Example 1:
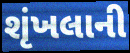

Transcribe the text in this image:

શૃંખલાની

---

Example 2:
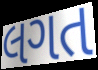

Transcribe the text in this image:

લગત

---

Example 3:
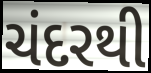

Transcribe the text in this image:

ચંદરથી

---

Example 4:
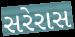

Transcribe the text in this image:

સરેરાસ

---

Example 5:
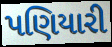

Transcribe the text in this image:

પણિયારી